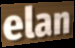
elan